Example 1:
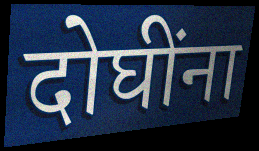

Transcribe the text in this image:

दोघींना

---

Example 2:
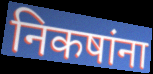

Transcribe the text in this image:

निकषांना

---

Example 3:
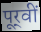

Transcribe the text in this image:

पूर्वीं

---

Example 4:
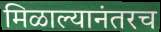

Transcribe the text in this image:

मिळाल्यानंतरच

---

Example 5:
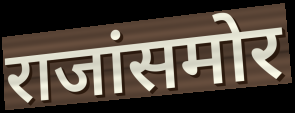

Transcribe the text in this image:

राजांसमोर